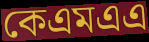
কেএমএএ